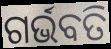
ଗର୍ଭବତି